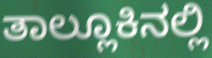
ತಾಲ್ಲೂಕಿನಲ್ಲಿ